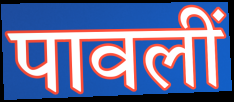
पावलीं